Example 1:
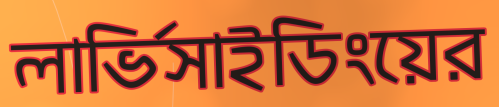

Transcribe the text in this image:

লার্ভিসাইডিংয়ের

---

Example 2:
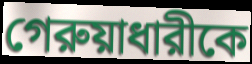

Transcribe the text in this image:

গেরুয়াধারীকে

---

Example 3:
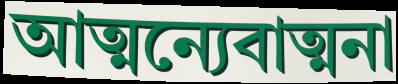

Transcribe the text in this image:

আত্মন্যেবাত্মনা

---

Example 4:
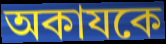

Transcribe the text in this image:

অকাযকে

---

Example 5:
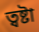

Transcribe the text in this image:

ত্বষ্টা